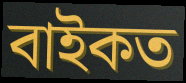
বাইকত